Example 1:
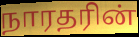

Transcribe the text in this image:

நாரதரின்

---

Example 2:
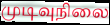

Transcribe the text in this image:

முடிவுநிலை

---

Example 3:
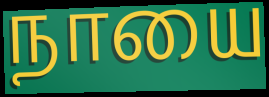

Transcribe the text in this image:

நாயை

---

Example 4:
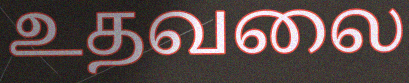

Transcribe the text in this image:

உதவலை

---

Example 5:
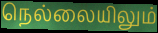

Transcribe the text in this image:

நெல்லையிலும்